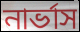
নার্ভাস